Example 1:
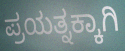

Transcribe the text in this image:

ಪ್ರಯತ್ನಕ್ಕಾಗಿ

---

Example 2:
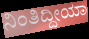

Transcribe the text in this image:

ನಿಂತಿದ್ದೀಯಾ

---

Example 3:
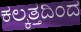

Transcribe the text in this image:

ಕಲ್ಕತ್ತದಿಂದ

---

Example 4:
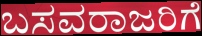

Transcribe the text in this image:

ಬಸವರಾಜರಿಗೆ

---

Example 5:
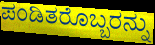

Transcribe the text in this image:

ಪಂಡಿತರೊಬ್ಬರನ್ನು